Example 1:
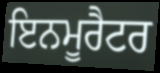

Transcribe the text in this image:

ਇਨਮੂਰੈਟਰ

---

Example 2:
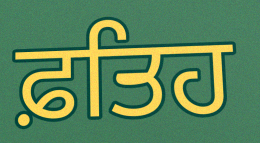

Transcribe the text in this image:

ਫ਼ਤਿਹ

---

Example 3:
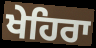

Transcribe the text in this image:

ਖੇਹਿਰਾ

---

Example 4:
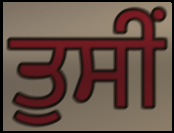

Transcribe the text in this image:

ਤੁਸੀਂ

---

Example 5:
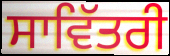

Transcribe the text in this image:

ਸਾਵਿੱਤਰੀ